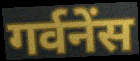
गर्वनेंस